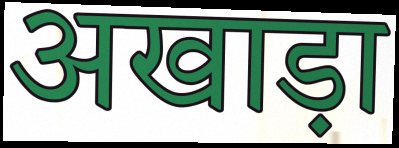
अखाड़ा